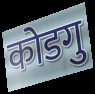
कोडगु